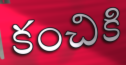
కంచికి